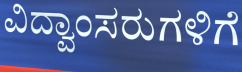
ವಿದ್ವಾಂಸರುಗಳಿಗೆ